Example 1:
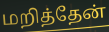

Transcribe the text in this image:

மறித்தேன்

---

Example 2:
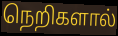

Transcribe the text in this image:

நெறிகளால்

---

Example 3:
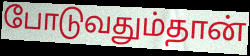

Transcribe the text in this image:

போடுவதும்தான்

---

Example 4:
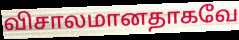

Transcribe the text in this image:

விசாலமானதாகவே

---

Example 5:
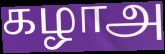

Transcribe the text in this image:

கழாஅ